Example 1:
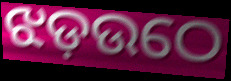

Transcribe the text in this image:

ଝଡ଼ଉଠେ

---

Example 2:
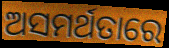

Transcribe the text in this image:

ଅସମର୍ଥତାରେ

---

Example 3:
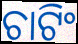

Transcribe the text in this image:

ଚାଟିଂ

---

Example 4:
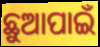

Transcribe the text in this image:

ଛୁଆପାଇଁ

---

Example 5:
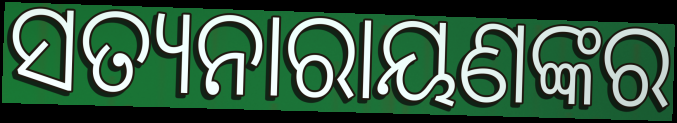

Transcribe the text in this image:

ସତ୍ୟନାରାୟଣଙ୍କର